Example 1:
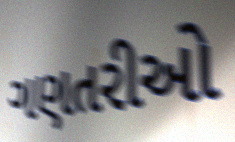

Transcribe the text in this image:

ગણતરીઓ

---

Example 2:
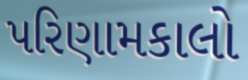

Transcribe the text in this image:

પરિણામકાલો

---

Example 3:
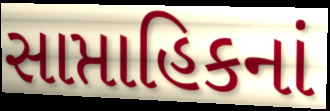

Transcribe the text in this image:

સાપ્તાહિકનાં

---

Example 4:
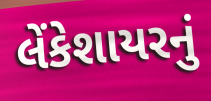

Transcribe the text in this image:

લેંકેશાયરનું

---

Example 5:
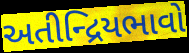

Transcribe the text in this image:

અતીન્દ્રિયભાવો